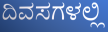
ದಿವಸಗಳಲ್ಲಿ